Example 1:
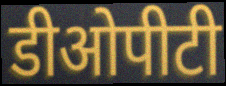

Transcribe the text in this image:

डीओपीटी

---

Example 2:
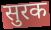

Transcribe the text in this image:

सुरक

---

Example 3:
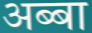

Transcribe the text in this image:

अब्बा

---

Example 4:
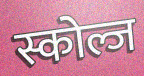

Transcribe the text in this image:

स्कोल्ज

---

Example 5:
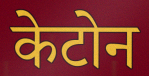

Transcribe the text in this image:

केटोन